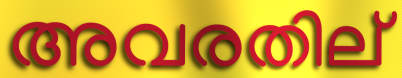
അവരതില്